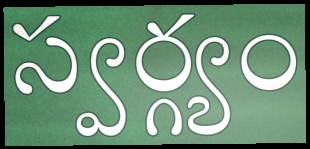
స్వర్గ్యం